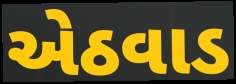
એઠવાડ